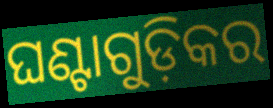
ଘଣ୍ଟାଗୁଡ଼ିକର